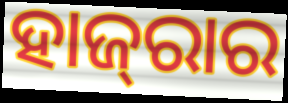
ହାଜ୍‌ରାର